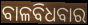
ବାଳବିଧବାର